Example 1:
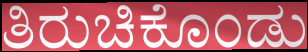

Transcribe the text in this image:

ತಿರುಚಿಕೊಂಡು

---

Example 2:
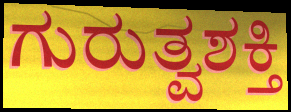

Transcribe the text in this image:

ಗುರುತ್ವಶಕ್ತಿ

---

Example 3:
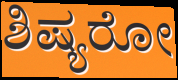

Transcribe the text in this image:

ಶಿಷ್ಯರೋ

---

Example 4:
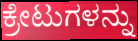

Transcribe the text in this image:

ಕ್ರೇಟುಗಳನ್ನು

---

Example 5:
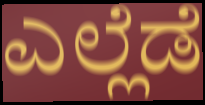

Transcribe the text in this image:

ಎಲ್ಲೆಡೆ